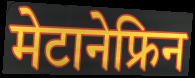
मेटानेफ्रिन